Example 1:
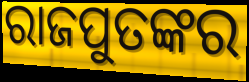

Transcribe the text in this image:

ରାଜପୁତଙ୍କର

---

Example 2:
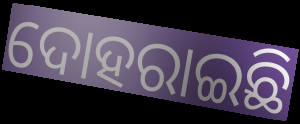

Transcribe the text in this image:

ଦୋହରାଇଛି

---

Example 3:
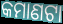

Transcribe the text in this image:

କମାଣଟା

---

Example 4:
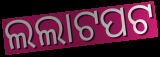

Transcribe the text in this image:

ଲଲାଟପଟ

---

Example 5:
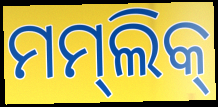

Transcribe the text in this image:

ମମ୍‌ଲିକ୍